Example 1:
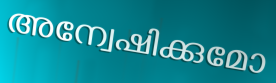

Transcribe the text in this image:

അന്വേഷിക്കുമോ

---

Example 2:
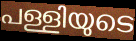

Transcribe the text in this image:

പള്ളിയുടെ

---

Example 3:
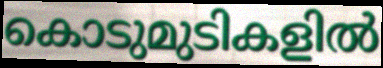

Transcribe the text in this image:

കൊടുമുടികളിൽ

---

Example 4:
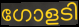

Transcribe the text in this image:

ഗോളടി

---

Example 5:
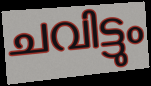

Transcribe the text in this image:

ചവിട്ടും